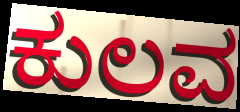
ಕುಲವ